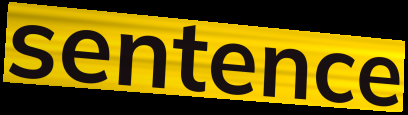
sentence